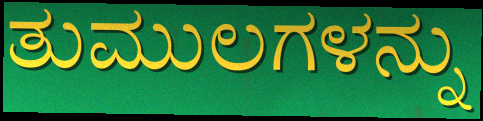
ತುಮುಲಗಳನ್ನು